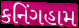
કનિંગહામ